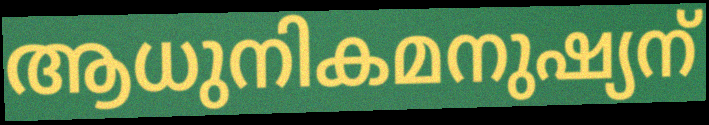
ആധുനികമനുഷ്യന്